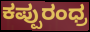
ಕಪ್ಪುರಂಧ್ರ